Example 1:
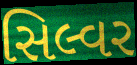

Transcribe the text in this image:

સિલ્વર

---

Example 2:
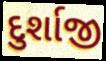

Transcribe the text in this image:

દુર્શાજી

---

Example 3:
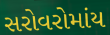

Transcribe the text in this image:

સરોવરોમાંય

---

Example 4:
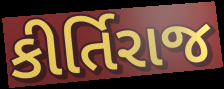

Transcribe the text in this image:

કીર્તિરાજ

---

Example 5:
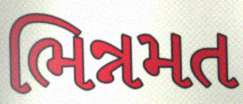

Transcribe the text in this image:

ભિન્નમત